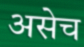
असेच